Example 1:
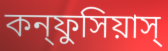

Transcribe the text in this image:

কন্ফুসিয়াস্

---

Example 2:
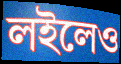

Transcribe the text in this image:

লইলেও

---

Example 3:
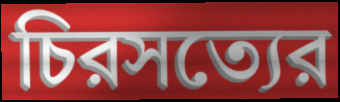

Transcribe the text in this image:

চিরসত্যের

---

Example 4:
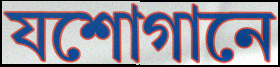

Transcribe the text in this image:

যশোগানে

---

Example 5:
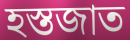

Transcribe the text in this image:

হস্তজাত